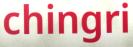
chingri